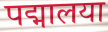
पद्मालया